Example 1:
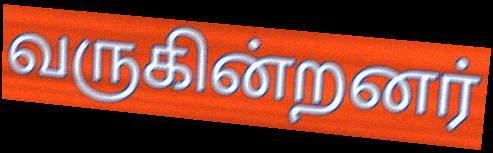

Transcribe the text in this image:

வருகின்றனர்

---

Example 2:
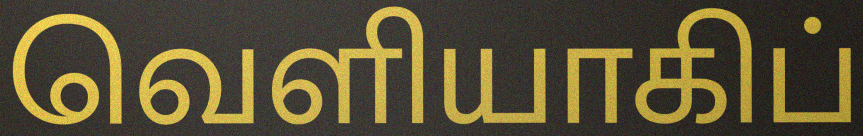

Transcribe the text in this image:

வெளியாகிப்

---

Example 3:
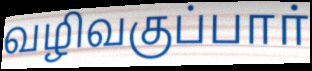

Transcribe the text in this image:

வழிவகுப்பார்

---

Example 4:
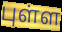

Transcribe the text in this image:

புள்ள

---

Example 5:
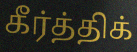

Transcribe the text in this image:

கீர்த்திக்